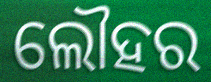
ଲୌହର